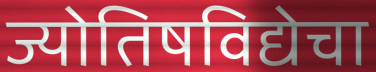
ज्योतिषविद्येचा